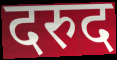
दरुद